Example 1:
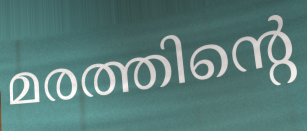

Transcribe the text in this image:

മരത്തിന്റെ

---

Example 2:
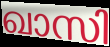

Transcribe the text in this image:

ഖാസി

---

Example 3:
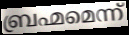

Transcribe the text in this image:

ബ്രഹ്മമെന്ന്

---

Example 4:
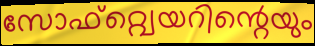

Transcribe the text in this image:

സോഫ്റ്റ്വെയറിന്റെയും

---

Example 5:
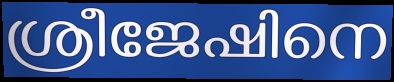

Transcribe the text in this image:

ശ്രീജേഷിനെ